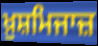
ਖ਼ੁਸ਼ਮਿਜਾਜ਼